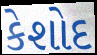
કેશોદ